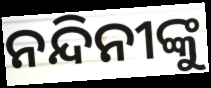
ନନ୍ଦିନୀଙ୍କୁ